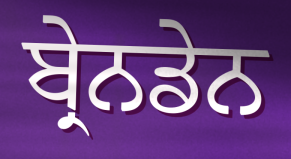
ਬ੍ਰੇਨਡੇਨ